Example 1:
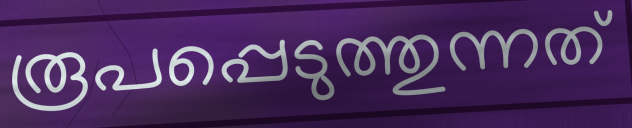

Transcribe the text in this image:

രൂപപ്പെടുത്തുന്നത്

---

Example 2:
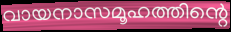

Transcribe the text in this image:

വായനാസമൂഹത്തിന്റെ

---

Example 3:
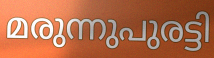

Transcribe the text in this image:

മരുന്നുപുരട്ടി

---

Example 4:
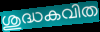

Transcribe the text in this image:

ശുദ്ധകവിത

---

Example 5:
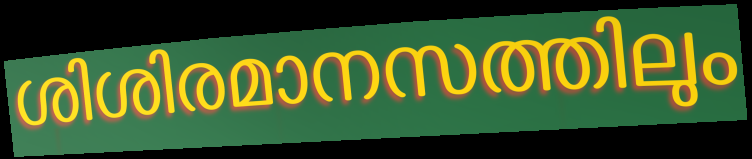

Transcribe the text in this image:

ശിശിരമാനസത്തിലും